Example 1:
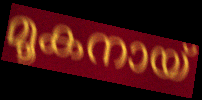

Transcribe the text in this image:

മൂകനായ്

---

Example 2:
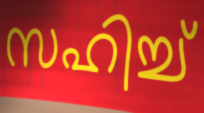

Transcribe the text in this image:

സഹിച്ച്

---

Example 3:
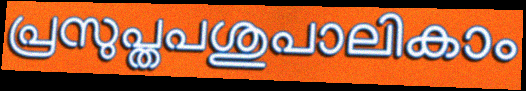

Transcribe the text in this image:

പ്രസുപ്തപശുപാലികാം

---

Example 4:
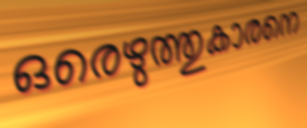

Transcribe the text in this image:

ഒരെഴുത്തുകാരനെ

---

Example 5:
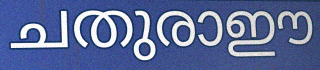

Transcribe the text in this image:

ചതുരാഈ